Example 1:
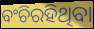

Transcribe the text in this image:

ବଂଚିରହିଥିବା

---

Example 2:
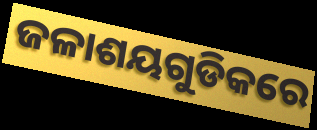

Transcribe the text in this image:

ଜଳାଶୟଗୁଡିକରେ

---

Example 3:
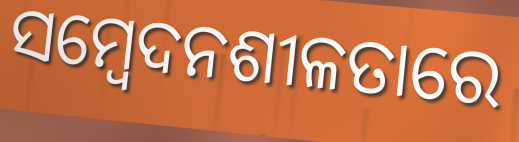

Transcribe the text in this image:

ସମ୍ବେଦନଶୀଳତାରେ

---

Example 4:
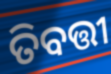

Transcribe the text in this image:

ତିବତ୍ତୀ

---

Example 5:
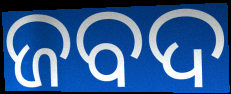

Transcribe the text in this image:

ଜବଦ